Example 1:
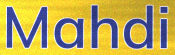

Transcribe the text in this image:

Mahdi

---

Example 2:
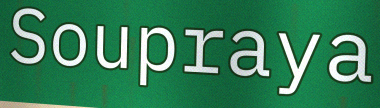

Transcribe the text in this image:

Soupraya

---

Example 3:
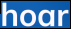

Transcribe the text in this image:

hoar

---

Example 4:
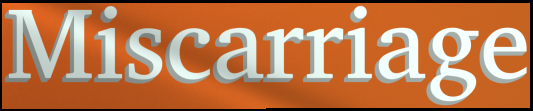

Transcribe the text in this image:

Miscarriage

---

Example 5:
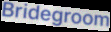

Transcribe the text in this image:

Bridegroom